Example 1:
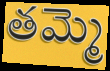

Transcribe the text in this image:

తమ్మె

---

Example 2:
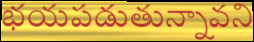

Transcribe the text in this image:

భయపడుతున్నావని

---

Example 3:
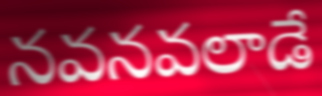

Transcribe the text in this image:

నవనవలాడే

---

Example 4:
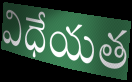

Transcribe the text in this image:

విధేయత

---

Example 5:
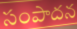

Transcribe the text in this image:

సంపాదన